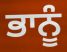
ਭਾਨੂੰ